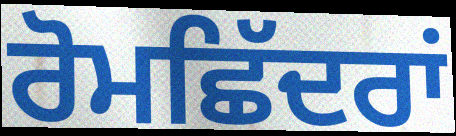
ਰੋਮਛਿੱਦਰਾਂ